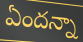
ఏందన్నా